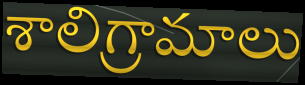
శాలిగ్రామాలు